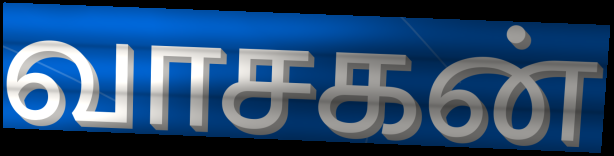
வாசகன்